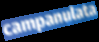
campanulata